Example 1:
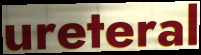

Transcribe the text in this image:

ureteral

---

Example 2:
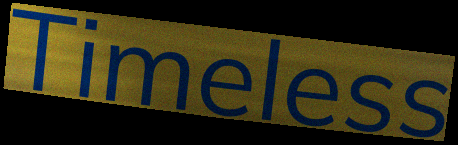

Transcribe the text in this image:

Timeless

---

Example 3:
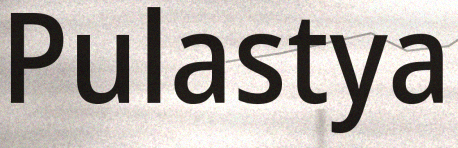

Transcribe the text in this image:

Pulastya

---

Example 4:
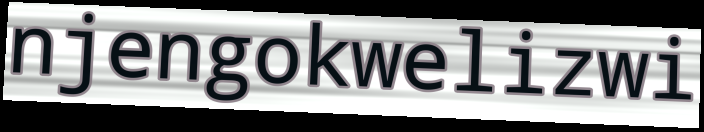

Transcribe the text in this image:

njengokwelizwi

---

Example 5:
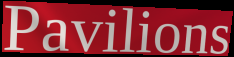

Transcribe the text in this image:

Pavilions